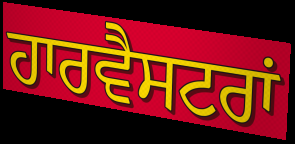
ਹਾਰਵੈਸਟਰਾਂ